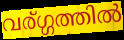
വര്ഗ്ഗത്തിൽ